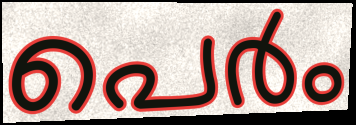
പെർം